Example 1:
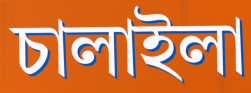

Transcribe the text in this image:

চালাইলা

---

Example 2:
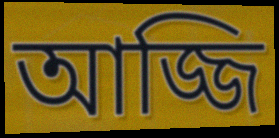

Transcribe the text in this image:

আজ্জি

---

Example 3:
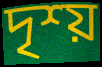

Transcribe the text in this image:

দৃশ্য়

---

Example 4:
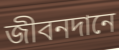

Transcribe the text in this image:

জীবনদানে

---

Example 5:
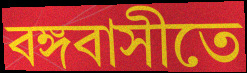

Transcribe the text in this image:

বঙ্গবাসীতে